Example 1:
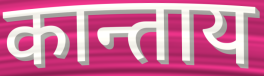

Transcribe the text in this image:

कान्ताय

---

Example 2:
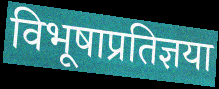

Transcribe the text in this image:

विभूषाप्रतिज्ञया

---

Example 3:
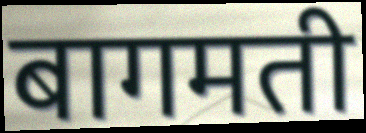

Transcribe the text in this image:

बागमती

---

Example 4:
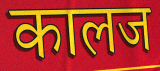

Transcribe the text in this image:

कालज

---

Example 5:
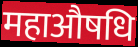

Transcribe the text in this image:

महाऔषधि